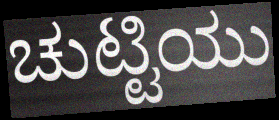
ಚುಟ್ಟಿಯು